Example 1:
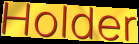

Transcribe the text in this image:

Holder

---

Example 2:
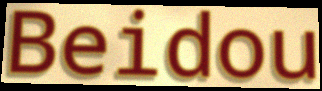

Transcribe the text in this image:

Beidou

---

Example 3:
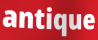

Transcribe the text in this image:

antique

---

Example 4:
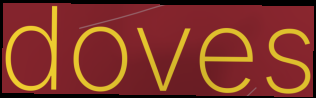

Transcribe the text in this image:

doves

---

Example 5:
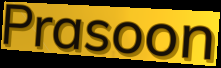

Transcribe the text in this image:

Prasoon